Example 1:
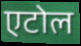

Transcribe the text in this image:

एटोल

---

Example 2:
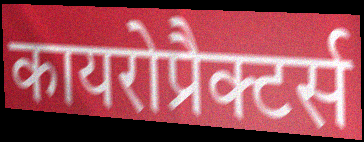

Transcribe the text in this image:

कायरोप्रैक्टर्स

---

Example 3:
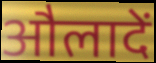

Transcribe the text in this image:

औलादें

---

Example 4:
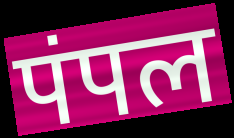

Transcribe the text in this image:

पंपल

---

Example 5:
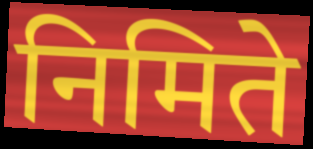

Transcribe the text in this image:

निमिते